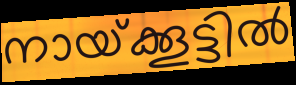
നായ്‌ക്കൂട്ടിൽ